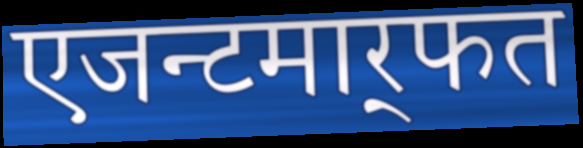
एजन्टमार्फत